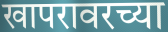
खापरावरच्या